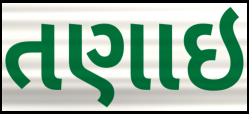
તણાઇ